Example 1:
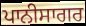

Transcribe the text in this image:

ਪਾਨੀਸਾਗਰ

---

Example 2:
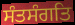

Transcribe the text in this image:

ਸੰਤਸੰਗਤਿ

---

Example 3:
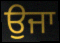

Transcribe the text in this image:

ਉਜਾ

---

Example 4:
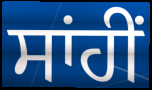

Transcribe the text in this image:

ਸਾਂਹੀਂ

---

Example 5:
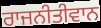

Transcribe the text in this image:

ਰਾਜਨੀਤੀਵਾਨ